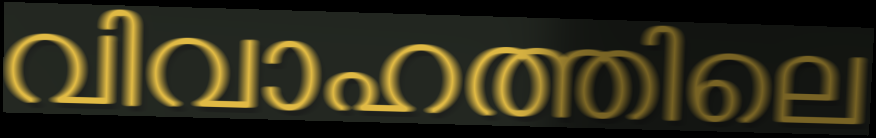
വിവാഹത്തിലെ